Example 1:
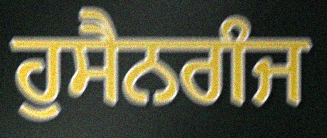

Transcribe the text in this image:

ਹੁਸੈਨਗੰਜ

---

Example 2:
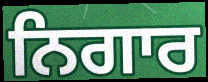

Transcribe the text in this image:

ਨਿਗਾਰ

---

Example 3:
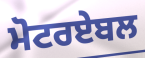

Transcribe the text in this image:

ਮੋਟਰਏਬਲ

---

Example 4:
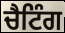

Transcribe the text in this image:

ਚੈਟਿੰਗ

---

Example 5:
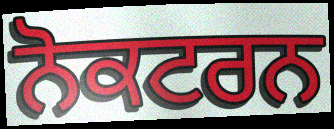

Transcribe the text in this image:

ਨੋਕਟਰਨ